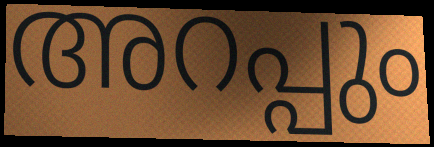
അറപ്പും